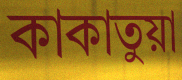
কাকাতুয়া